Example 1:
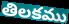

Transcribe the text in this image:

తిలకము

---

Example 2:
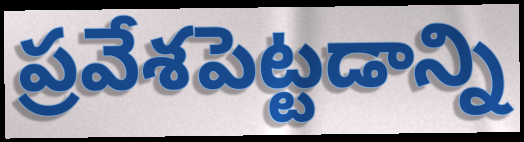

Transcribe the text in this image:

ప్రవేశపెట్టడాన్ని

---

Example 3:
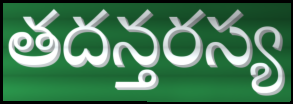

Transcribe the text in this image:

తదన్తరస్య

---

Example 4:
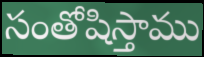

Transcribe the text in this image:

సంతోషిస్తాము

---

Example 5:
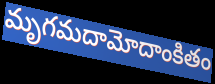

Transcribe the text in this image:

మృగమదామోదాంకితం